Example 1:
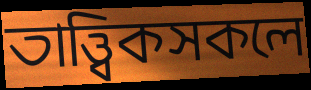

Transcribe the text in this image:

তাত্ত্বিকসকলে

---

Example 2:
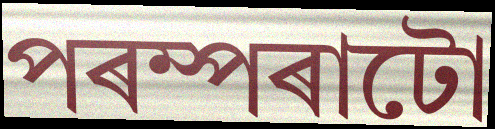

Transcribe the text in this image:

পৰম্পৰাটো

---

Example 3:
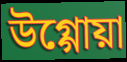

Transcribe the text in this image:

উগ্গোয়া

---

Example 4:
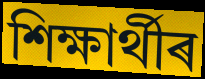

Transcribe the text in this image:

শিক্ষাৰ্থীৰ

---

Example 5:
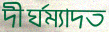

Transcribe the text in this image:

দীৰ্ঘম্যাদত